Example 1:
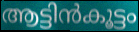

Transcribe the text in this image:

ആട്ടിൻകൂട്ടം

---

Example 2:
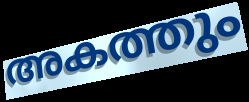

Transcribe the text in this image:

അകത്തും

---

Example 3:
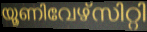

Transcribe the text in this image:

യൂണിവേഴ്സിറ്റി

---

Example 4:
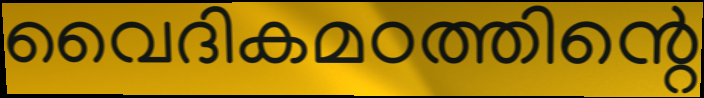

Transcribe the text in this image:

വൈദികമഠത്തിന്റെ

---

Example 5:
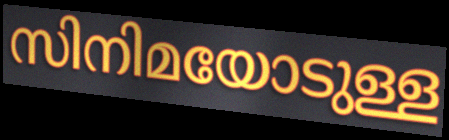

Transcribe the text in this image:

സിനിമയോടുള്ള